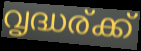
വൃദ്ധര്ക്ക്